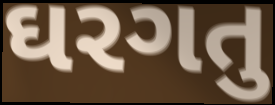
ઘરગતુ